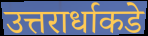
उत्तरार्धाकडे